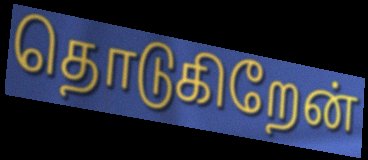
தொடுகிறேன்